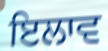
ਇਲਾਵ